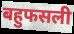
बहुफसली